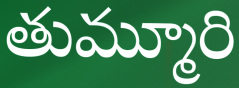
తుమ్మూరి